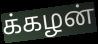
க்கழன்